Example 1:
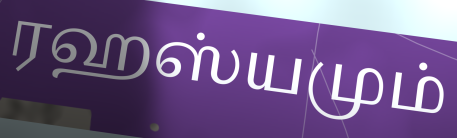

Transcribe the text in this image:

ரஹஸ்யமும்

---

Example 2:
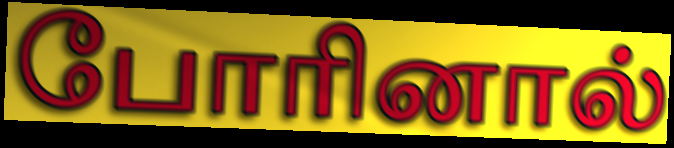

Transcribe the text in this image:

போரினால்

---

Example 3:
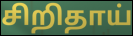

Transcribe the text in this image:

சிறிதாய்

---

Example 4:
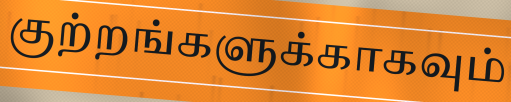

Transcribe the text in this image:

குற்றங்களுக்காகவும்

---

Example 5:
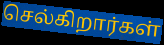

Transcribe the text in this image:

செல்கிறார்கள்